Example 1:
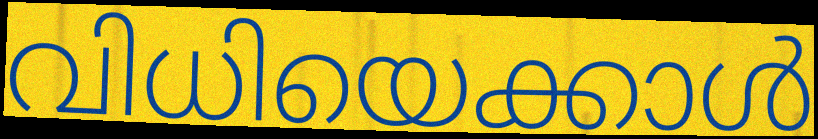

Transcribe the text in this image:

വിധിയെക്കാൾ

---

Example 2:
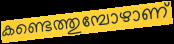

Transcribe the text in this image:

കണ്ടെത്തുമ്പോഴാണ്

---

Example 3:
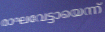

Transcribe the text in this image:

രാഘവേട്ടായെന്ന്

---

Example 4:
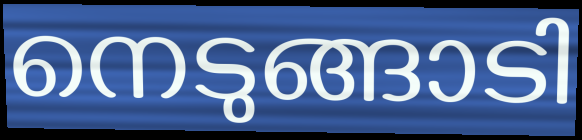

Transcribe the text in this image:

നെടുങ്ങാടി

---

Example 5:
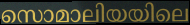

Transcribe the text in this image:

സൊമാലിയയിലെ